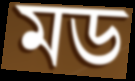
মড